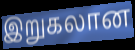
இறுகலான